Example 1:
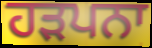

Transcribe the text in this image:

ਹੜਪਨਾ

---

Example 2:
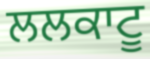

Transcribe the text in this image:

ਲਲਕਾਟੂ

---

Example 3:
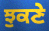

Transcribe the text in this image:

ਝੁਕਣੇ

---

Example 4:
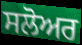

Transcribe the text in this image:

ਸਲੋਅਰ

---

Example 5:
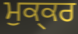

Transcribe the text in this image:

ਮੁਕ੍ਕਰ